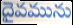
దైవమును